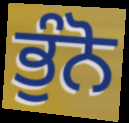
ਭੁੰਨੋ